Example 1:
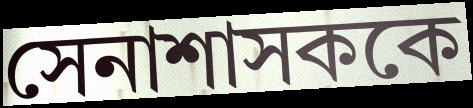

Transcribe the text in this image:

সেনাশাসককে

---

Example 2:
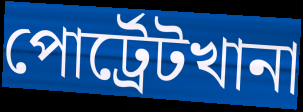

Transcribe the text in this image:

পোর্ট্রেটখানা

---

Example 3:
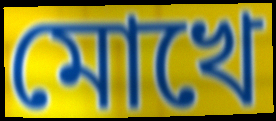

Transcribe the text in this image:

মোখে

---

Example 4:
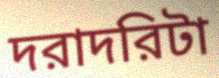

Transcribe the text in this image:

দরাদরিটা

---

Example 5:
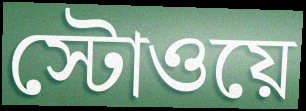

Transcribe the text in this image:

স্টোওয়ে